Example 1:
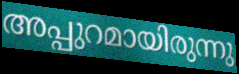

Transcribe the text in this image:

അപ്പുറമായിരുന്നു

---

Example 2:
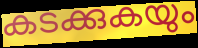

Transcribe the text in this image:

കടക്കുകയും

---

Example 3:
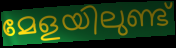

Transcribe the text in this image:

മേളയിലുണ്ട്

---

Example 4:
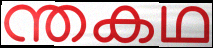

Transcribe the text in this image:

ന്തകഥ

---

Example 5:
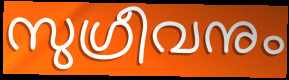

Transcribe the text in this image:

സുഗ്രീവനും